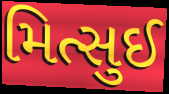
મિત્સુઈ